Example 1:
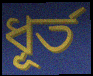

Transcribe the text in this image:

ধূর্ত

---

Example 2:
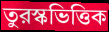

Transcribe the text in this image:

তুরস্কভিত্তিক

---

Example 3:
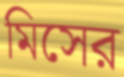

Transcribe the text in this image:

মিসের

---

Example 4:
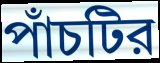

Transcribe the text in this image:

পাঁচটির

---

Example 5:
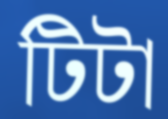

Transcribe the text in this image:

টিটা